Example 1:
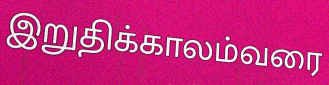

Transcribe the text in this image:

இறுதிக்காலம்வரை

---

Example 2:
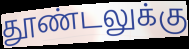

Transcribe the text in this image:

தூண்டலுக்கு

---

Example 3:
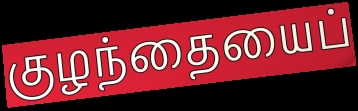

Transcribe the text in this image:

குழந்தையைப்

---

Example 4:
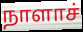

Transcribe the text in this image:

நாளாச்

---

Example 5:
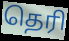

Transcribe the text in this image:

தெரி